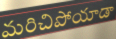
మరిచిపోయాడా